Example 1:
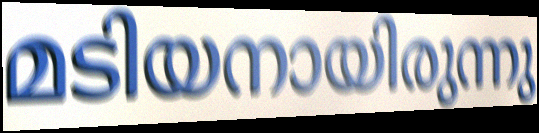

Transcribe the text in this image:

മടിയനായിരുന്നു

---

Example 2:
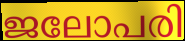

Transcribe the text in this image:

ജലോപരി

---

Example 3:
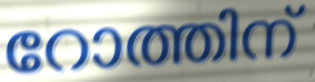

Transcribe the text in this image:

റോത്തിന്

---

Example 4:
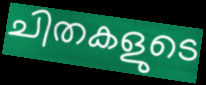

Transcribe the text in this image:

ചിതകളുടെ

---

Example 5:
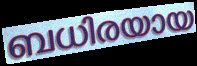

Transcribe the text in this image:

ബധിരയായ